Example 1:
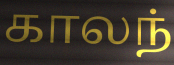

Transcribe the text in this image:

காலந்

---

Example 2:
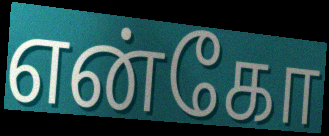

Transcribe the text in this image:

என்கோ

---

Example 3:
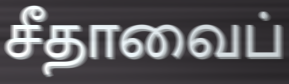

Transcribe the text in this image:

சீதாவைப்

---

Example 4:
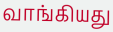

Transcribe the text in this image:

வாங்கியது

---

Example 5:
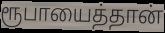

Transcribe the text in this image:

ரூபாயைத்தான்